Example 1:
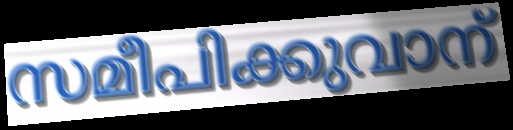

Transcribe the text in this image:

സമീപിക്കുവാന്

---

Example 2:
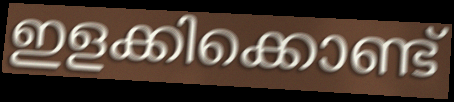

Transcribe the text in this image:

ഇളക്കിക്കൊണ്ട്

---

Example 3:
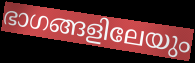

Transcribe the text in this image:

ഭാഗങ്ങളിലേയും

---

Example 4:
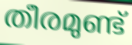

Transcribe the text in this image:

തീരമുണ്ട്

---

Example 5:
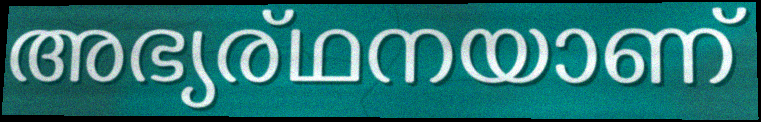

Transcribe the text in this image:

അഭ്യര്ഥനയാണ്